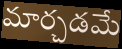
మార్చడమే